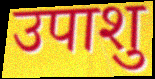
उपाशु